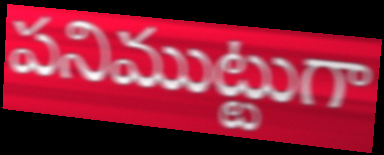
పనిముట్టుగా